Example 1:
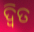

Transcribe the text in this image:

ଦ୍ୱିତ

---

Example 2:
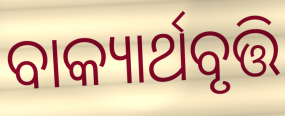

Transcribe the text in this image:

ବାକ୍ୟାର୍ଥବୃତ୍ତି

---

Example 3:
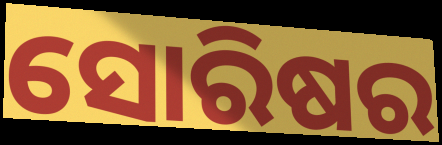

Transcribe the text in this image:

ସୋରିଷର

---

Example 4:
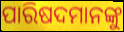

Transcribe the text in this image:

ପାରିଷଦମାନଙ୍କୁ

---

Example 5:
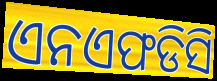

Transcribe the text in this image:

ଏନଏଫଡିସି